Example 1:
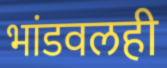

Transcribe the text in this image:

भांडवलही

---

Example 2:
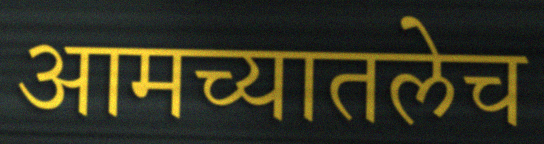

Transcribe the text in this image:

आमच्यातलेच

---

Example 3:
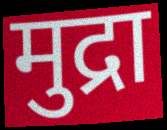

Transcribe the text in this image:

मुद्रा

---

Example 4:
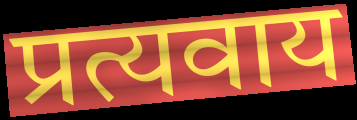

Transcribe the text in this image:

प्रत्यवाय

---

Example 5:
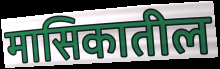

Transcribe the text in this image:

मासिकातील